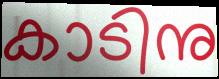
കാടിനു